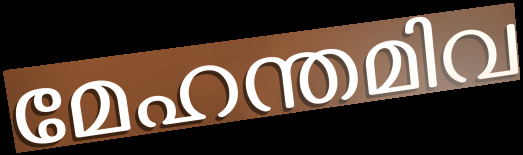
മേഹന്തമിവ